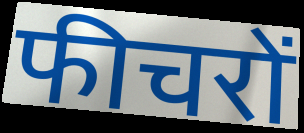
फीचरों